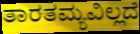
ತಾರತಮ್ಯವಿಲ್ಲದೆ